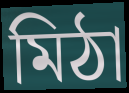
মিঠা